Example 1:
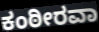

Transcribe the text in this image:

ಕಂಠೀರವಾ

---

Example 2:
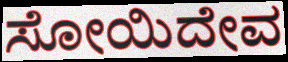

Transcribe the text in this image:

ಸೋಯಿದೇವ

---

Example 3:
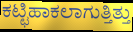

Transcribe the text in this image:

ಕಟ್ಟಿಹಾಕಲಾಗುತ್ತಿತ್ತು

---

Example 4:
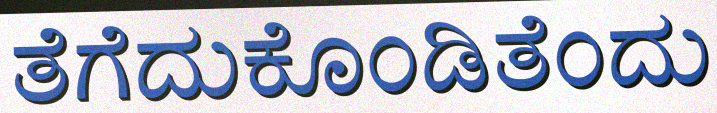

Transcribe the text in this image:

ತೆಗೆದುಕೊಂಡಿತೆಂದು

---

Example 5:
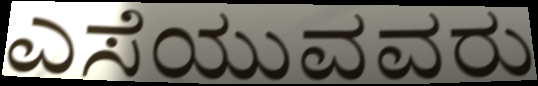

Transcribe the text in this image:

ಎಸೆಯುವವರು